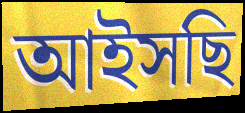
আইসছি